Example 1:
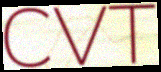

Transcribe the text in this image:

CVT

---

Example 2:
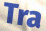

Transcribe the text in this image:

Tra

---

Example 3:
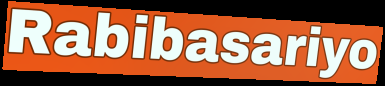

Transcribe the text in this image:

Rabibasariyo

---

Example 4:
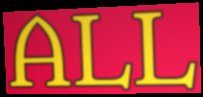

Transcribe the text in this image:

ALL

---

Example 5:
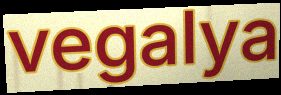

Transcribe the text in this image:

vegalya